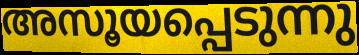
അസൂയപ്പെടുന്നു